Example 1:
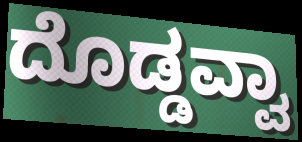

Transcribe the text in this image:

ದೊಡ್ಡವ್ವಾ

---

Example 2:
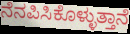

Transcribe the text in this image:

ನೆನಪಿಸಿಕೊಳ್ಳುತ್ತಾನೆ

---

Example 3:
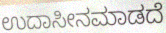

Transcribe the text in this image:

ಉದಾಸೀನಮಾಡದೆ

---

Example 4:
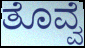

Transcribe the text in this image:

ತೊವ್ವೆ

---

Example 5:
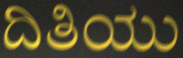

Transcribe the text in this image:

ದಿತಿಯು